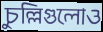
চুল্লিগুলোও